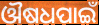
ଔଷଧପାଇଁ